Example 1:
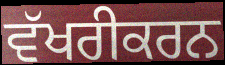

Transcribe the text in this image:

ਵੱਖਰੀਕਰਨ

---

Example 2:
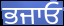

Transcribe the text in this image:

ਭਜਾਓ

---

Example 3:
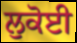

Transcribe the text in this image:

ਲੁਕੋਈ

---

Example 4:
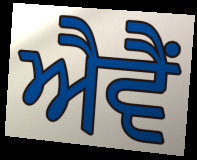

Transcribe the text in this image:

ਐਵੈਂ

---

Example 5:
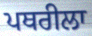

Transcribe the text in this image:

ਪਥਰੀਲਾ